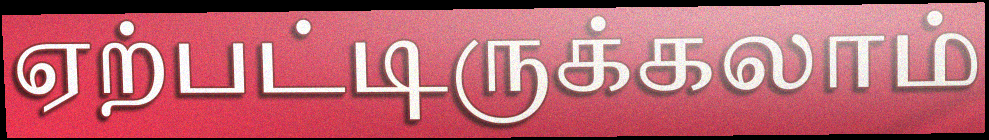
ஏற்பட்டிருக்கலாம்